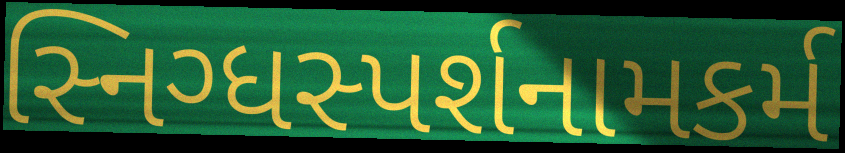
સ્નિગ્ધસ્પર્શનામકર્મ